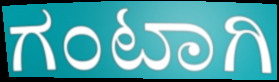
ಗಂಟಾಗಿ